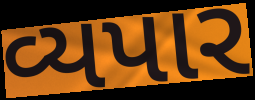
વ્યપાર